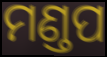
ମଣ୍ଡପ